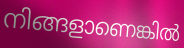
നിങ്ങളാണെങ്കിൽ